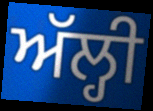
ਅੱਲ੍ਹੀ